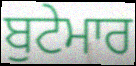
ਬੁਟੇਮਾਰ